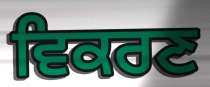
ਵਿਕਰਣ